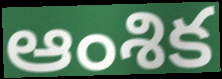
ఆంశిక